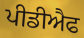
ਪੀਡੀਐਫ